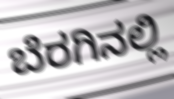
ಬೆರಗಿನಲ್ಲಿ